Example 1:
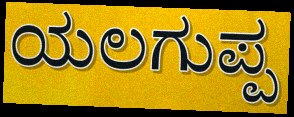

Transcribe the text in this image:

ಯಲಗುಪ್ಪ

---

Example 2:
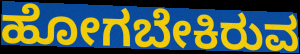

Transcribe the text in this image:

ಹೋಗಬೇಕಿರುವ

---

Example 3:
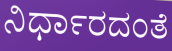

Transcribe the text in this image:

ನಿರ್ಧಾರದಂತೆ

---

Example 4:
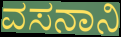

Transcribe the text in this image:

ವಸನಾನಿ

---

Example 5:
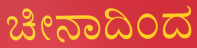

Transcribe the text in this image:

ಚೀನಾದಿಂದ